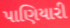
પાણિયારી